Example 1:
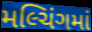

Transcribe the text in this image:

મલ્ચિંગમાં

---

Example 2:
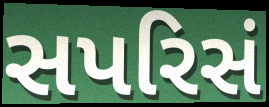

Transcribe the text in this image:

સપરિસં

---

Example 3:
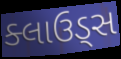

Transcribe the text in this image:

ક્લાઉડ્સ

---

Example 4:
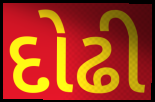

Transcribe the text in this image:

દોઢી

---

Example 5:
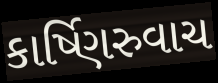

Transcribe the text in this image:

કાર્ષ્ણિરુવાચ